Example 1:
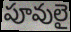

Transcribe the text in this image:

పూవులై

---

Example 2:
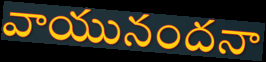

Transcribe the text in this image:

వాయునందనా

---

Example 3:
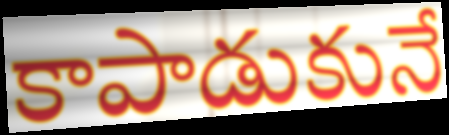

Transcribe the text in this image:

కాపాడుకునే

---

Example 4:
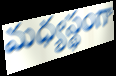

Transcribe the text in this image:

మధ్యస్థంగా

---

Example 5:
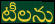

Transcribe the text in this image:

టీలను